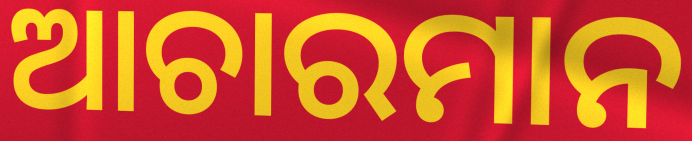
ଆଚାରମାନ